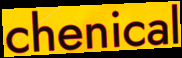
chenical